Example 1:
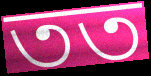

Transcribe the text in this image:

তত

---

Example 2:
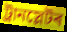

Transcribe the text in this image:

ট্ৰানস্লেটৰ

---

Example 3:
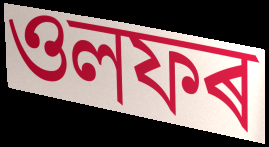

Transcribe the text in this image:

ওলফৰ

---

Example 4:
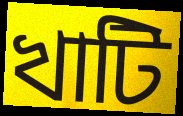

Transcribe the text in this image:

খাটি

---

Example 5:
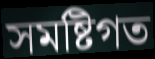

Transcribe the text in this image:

সমষ্টিগত